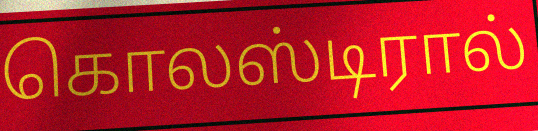
கொலஸ்டிரால்